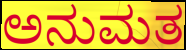
ಅನುಮತ